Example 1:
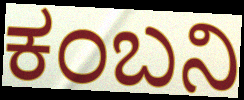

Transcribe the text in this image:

ಕಂಬನಿ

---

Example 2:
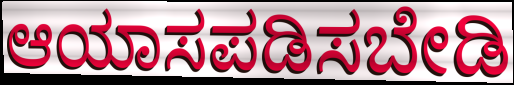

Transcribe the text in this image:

ಆಯಾಸಪಡಿಸಬೇಡಿ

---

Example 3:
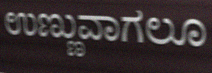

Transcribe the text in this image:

ಉಣ್ಣುವಾಗಲೂ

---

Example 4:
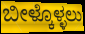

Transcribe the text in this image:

ಬೀಳ್ಕೊಳ್ಳಲು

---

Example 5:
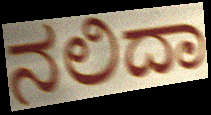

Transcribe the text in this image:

ನಲಿದಾ